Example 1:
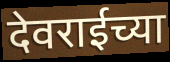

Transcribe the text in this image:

देवराईच्या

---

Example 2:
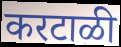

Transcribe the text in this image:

करटाळी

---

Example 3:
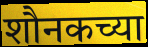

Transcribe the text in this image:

शौनकच्या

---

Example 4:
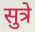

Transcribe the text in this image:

सुत्रे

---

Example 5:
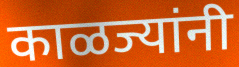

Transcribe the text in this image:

काळज्यांनी